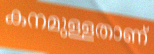
കനമുള്ളതാണ്